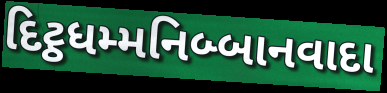
દિટ્ઠધમ્મનિબ્બાનવાદા